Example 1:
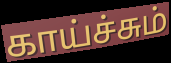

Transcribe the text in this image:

காய்ச்சும்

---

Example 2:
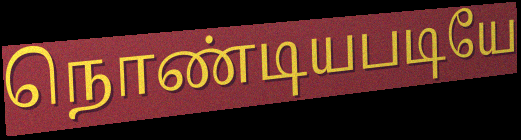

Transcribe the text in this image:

நொண்டியபடியே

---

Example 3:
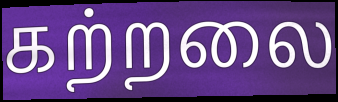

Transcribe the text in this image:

கற்றலை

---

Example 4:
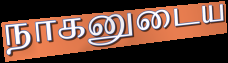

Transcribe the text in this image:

நாகனுடைய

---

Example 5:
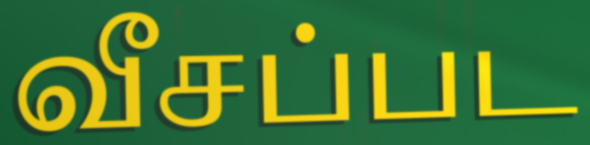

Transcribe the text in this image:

வீசப்பட